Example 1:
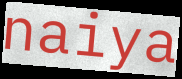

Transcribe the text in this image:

naiya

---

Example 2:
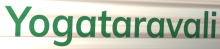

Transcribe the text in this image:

Yogataravali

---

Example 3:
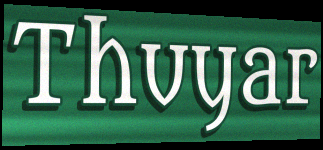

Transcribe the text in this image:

Thuyar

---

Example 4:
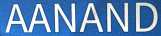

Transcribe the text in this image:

AANAND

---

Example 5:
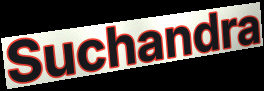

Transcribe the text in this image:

Suchandra